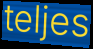
teljes